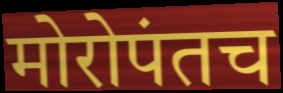
मोरोपंतच